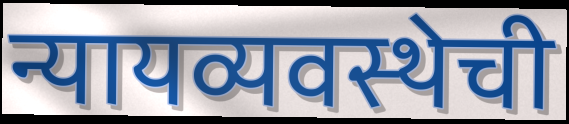
न्यायव्यवस्थेची